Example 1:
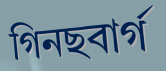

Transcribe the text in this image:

গিনছবাৰ্গ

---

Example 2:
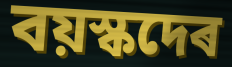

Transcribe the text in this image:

বয়স্কদেৰ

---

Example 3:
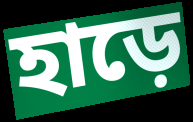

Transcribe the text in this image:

হাড়ে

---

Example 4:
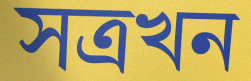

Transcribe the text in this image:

সত্ৰখন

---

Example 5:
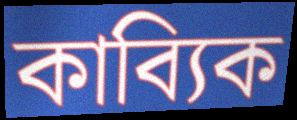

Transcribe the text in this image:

কাব্যিক